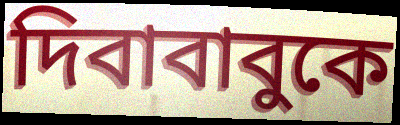
দিবাবাবুকে